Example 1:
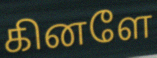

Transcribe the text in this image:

கினளே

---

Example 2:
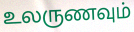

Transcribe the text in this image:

உலருணவும்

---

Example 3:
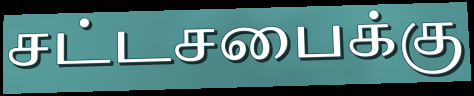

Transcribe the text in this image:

சட்டசபைக்கு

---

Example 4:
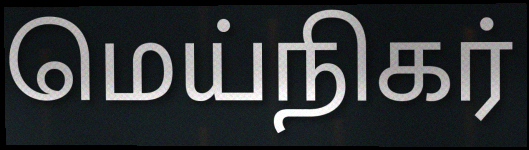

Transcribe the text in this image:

மெய்நிகர்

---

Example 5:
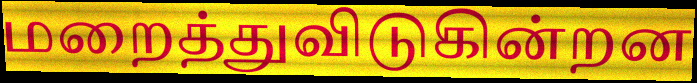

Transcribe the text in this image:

மறைத்துவிடுகின்றன